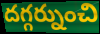
దగ్గర్నుంచి